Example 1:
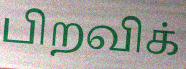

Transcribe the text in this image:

பிறவிக்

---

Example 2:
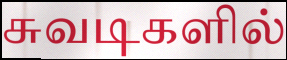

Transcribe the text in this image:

சுவடிகளில்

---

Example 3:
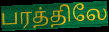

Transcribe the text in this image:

பரத்திலே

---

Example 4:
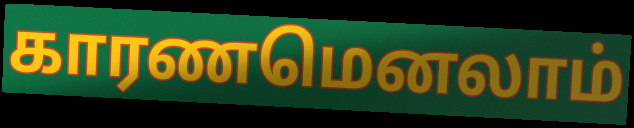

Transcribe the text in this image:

காரணமெனலாம்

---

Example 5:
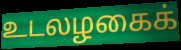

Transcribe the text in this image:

உடலழகைக்